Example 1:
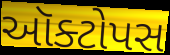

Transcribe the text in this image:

ઑક્ટોપસ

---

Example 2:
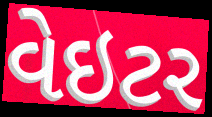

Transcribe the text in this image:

વેઇટર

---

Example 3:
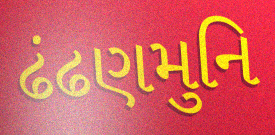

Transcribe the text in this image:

ઢંઢણમુનિ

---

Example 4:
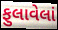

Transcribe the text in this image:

ફુલાવેલાં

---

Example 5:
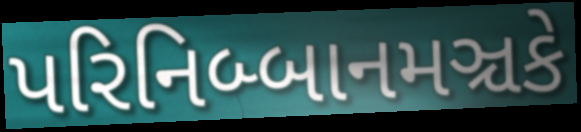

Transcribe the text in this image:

પરિનિબ્બાનમઞ્ચકે